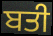
ਬਤੀ